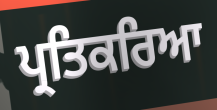
ਪ੍ਰਤਿਕਰਿਆ